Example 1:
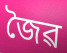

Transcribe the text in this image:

জৈৱ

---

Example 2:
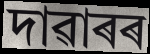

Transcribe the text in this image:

দাৱাৰৰ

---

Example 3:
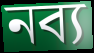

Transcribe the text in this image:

নব্য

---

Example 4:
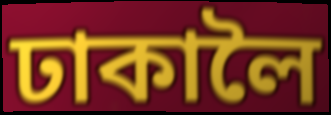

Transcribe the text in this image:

ঢাকালৈ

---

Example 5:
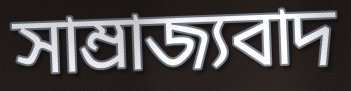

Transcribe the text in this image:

সাম্ৰাজ্যবাদ